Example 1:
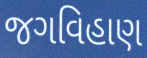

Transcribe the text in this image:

જગવિહાણ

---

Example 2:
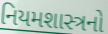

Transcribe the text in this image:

નિયમશાસ્ત્રનો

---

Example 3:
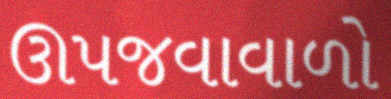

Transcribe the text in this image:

ઊપજવાવાળો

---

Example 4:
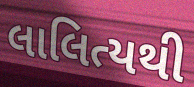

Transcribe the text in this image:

લાલિત્યથી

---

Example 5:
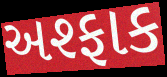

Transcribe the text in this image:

અશ્ફાક